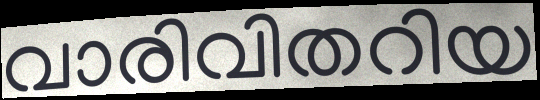
വാരിവിതറിയ